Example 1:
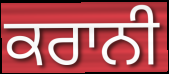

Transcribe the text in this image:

ਕਰਾਨੀ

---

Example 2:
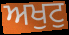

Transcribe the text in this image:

ਅਖੁਟੁ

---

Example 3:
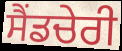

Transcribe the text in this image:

ਸੈਂਡਚੇਰੀ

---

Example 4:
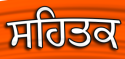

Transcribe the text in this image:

ਸਹਿਤਕ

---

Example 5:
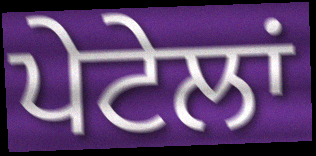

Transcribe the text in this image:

ਪੇਟੇਲਾਂ